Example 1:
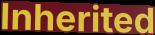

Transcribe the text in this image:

Inherited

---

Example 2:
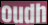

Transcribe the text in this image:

oudh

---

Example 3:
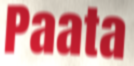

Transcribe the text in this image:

Paata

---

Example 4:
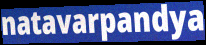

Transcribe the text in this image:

natavarpandya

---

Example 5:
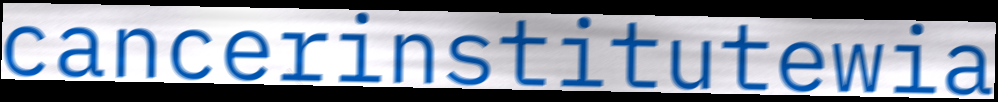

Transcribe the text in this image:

cancerinstitutewia